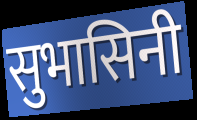
सुभासिनी